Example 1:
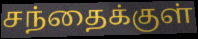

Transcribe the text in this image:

சந்தைக்குள்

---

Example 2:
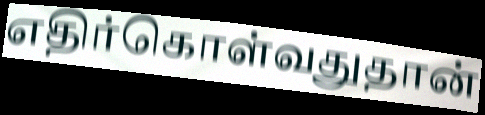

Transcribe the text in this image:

எதிர்கொள்வதுதான்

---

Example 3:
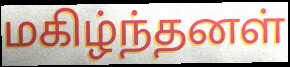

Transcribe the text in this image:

மகிழ்ந்தனள்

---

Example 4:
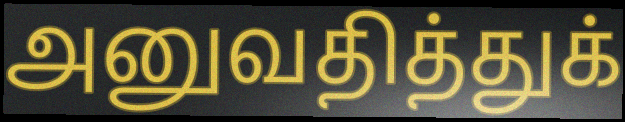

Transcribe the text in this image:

அனுவதித்துக்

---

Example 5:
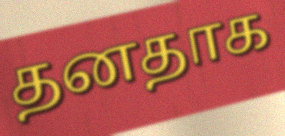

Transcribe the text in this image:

தனதாக